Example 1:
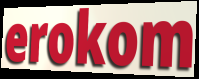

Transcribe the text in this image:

erokom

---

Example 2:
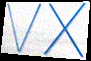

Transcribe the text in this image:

vx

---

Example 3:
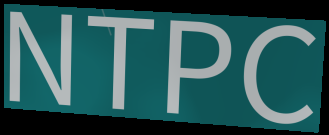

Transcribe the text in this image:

NTPC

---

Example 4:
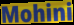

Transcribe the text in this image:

Mohini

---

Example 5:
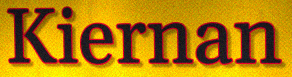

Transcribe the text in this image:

Kiernan